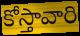
కోస్తావారి